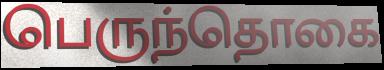
பெருந்தொகை